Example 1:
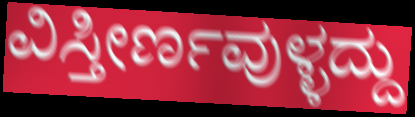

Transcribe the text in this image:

ವಿಸ್ತೀರ್ಣವುಳ್ಳದ್ದು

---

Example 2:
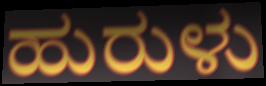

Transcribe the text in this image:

ಹುರುಳು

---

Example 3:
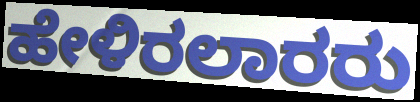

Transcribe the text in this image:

ಹೇಳಿರಲಾರರು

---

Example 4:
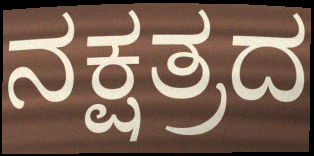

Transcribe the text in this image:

ನಕ್ಷತ್ರದ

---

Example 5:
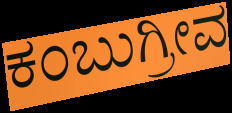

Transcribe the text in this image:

ಕಂಬುಗ್ರೀವ